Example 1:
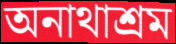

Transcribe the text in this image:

অনাথাশ্রম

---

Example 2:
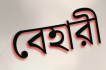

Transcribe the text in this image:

বেহারী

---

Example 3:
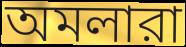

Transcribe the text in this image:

অমলারা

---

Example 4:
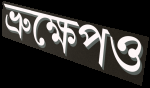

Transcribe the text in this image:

ভ্রুক্ষেপও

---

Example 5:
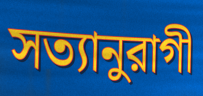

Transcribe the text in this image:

সত্যানুরাগী